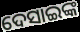
ଦେସାଇଙ୍କ